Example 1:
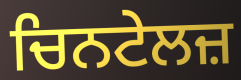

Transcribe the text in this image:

ਚਿਨਟੇਲਜ਼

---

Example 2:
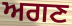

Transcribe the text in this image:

ਅਗਣ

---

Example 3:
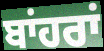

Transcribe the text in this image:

ਬਾਂਹਰਾਂ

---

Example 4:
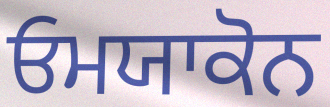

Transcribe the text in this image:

ਓਮਯਾਕੋਨ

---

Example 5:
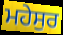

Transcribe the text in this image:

ਮਹੇਸੁਰ